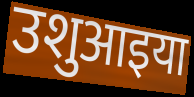
उशुआइया